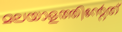
മലയാളത്തിന്റേത്